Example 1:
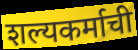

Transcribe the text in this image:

शल्यकर्माची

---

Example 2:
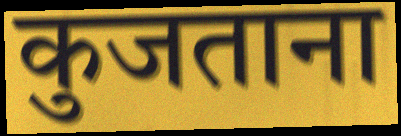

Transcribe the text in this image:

कुजताना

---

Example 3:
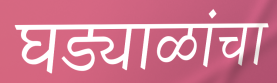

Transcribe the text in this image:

घड्याळांचा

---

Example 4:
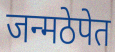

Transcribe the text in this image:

जन्मठेपेत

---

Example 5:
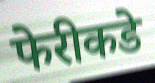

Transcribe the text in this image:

फेरीकडे